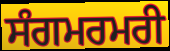
ਸੰਗਮਰਮਰੀ